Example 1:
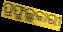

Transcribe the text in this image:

ପ୍ରଫୁଲ୍ଲକାରୀ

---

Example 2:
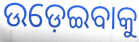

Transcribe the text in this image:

ଉଡ଼େଇବାକୁ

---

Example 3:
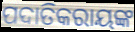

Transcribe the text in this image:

ପଦାତିକରାୟଙ୍କ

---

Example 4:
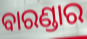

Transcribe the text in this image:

ବାରଣ୍ଡାର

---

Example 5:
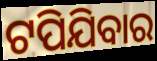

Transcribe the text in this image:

ଟପିଯିବାର